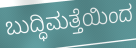
ಬುದ್ಧಿಮತ್ತೆಯಿಂದ